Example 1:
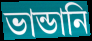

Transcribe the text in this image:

ভান্ডানি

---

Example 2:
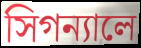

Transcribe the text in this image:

সিগন্যালে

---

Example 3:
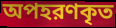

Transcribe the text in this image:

অপহরণকৃত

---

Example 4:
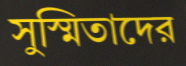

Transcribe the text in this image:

সুস্মিতাদের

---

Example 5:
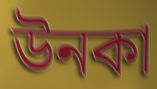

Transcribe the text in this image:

উনকা